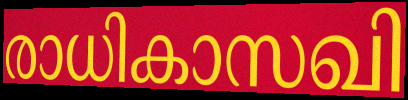
രാധികാസഖി